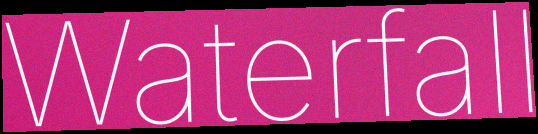
Waterfall